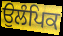
ਉਲੰਪਿਕ